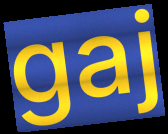
gaj